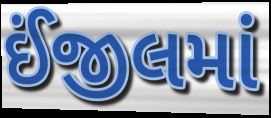
ઈંજીલમાં